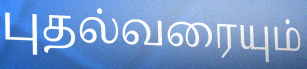
புதல்வரையும்